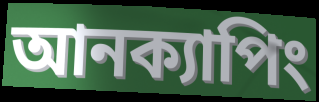
আনক্যাপিং